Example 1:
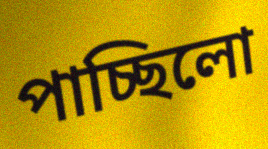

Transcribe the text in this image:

পাচ্ছিলো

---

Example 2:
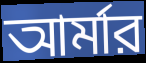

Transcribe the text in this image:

আর্মার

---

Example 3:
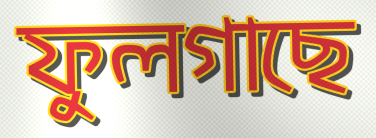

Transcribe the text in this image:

ফুলগাছে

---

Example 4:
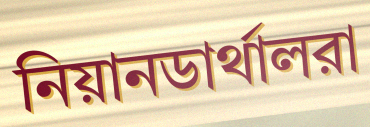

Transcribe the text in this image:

নিয়ানডার্থালরা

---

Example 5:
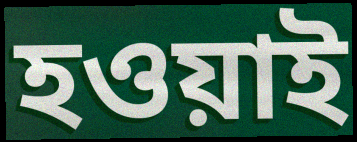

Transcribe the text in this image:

হওয়াই